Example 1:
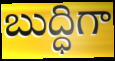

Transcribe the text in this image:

బుద్ధిగా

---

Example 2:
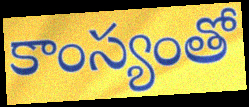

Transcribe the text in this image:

కాంస్యంతో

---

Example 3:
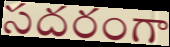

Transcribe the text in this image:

సదరంగా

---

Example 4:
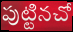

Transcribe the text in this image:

పుట్టినచో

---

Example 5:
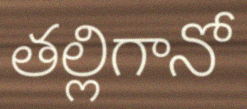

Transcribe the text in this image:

తల్లిగానో